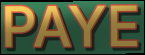
PAYE